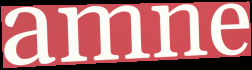
amne